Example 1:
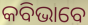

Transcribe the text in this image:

କବିଭାବେ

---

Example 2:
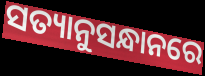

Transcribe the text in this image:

ସତ୍ୟାନୁସନ୍ଧାନରେ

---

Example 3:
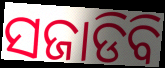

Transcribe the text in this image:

ସଜାଡିବି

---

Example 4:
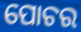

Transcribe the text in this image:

ପୋଚର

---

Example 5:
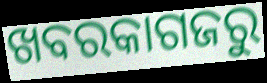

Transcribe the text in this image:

ଖବରକାଗଜରୁ